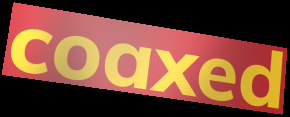
coaxed